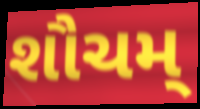
શૌચમ્